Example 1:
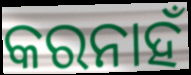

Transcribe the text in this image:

କରନାହଁ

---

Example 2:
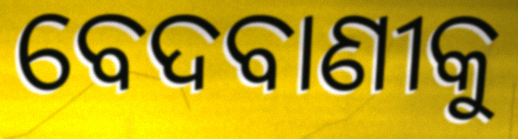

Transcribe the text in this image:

ବେଦବାଣୀକୁ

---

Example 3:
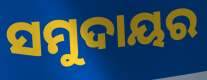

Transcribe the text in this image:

ସମୁଦାୟର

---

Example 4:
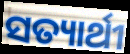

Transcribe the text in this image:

ସତ୍ୟାର୍ଥୀ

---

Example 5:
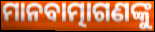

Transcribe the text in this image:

ମାନବାତ୍ମାଗଣଙ୍କୁ